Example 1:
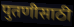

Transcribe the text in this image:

पुतणीसाठी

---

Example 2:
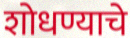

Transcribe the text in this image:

शोधण्याचे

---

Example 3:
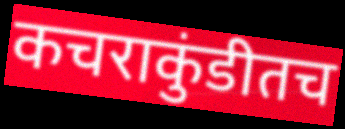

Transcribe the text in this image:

कचराकुंडीतच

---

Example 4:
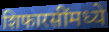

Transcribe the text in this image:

शिफारसींमध्ये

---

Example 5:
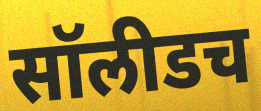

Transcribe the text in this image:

सॉलीडच